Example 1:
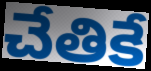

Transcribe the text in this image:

చేతికే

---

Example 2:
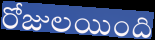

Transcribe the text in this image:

రోజులయింది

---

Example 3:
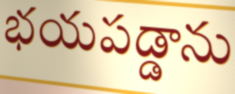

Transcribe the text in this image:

భయపడ్డాను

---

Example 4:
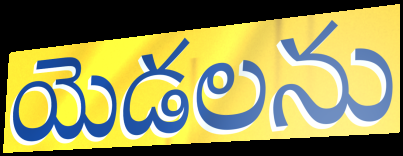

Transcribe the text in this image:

యెడలను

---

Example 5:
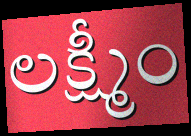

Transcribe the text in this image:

లక్ష్మీం